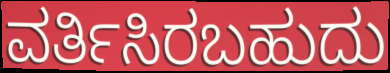
ವರ್ತಿಸಿರಬಹುದು